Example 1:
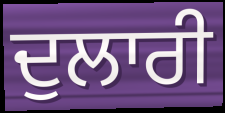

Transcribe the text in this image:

ਦੁਲਾਰੀ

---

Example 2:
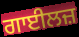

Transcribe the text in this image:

ਗਾਈਲਜ਼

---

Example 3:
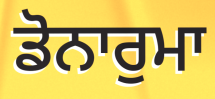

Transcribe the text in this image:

ਡੋਨਾਰੁਮਾ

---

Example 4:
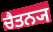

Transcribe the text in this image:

ਚੈਤਨ੍ਯ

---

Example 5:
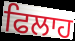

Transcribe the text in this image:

ਫਿਲਾਹ